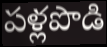
పళ్లపొడి